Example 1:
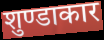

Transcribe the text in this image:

शुण्डाकार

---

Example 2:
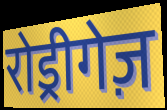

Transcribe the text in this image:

रोड्रीगेज़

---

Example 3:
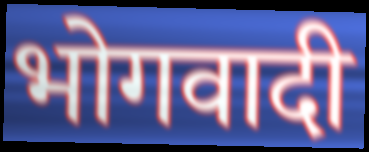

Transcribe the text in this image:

भोगवादी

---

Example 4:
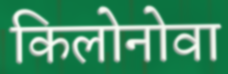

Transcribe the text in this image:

किलोनोवा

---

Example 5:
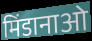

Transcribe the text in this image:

मिंडानाओ